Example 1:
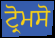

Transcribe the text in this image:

ਟ੍ਰੋਮਸੋ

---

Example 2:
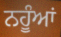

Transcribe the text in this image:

ਨਹੂੰਆਂ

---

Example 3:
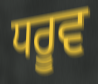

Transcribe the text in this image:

ਧਰੂਵ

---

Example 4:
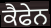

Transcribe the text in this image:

ਕੈਫੇਨ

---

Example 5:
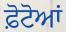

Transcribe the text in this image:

ਫ਼ੋਟੋਆਂ